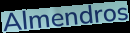
Almendros